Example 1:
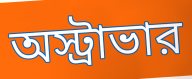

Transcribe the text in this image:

অস্ট্রাভার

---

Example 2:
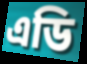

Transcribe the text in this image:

এডি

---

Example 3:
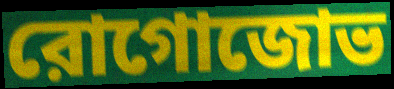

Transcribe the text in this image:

রোগোজোভ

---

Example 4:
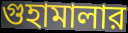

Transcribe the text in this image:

গুহামালার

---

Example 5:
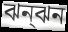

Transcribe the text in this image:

ঝন্ঝন